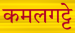
कमलगट्टे